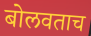
बोलवताच